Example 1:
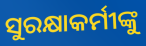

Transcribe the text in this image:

ସୁରକ୍ଷାକର୍ମୀଙ୍କୁ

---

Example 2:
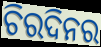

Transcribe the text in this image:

ଚିରଦିନର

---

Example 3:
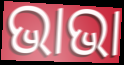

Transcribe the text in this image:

ଭାଭା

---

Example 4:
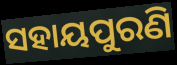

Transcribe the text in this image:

ସହାୟପୁରଣି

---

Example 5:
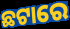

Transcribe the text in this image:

ଛଟାରେ